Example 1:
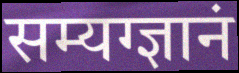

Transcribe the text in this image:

सम्यग्ज्ञानं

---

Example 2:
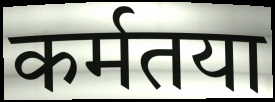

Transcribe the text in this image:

कर्मतया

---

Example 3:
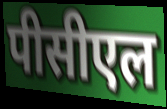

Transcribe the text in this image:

पीसीएल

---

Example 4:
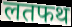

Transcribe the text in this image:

लतफथ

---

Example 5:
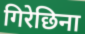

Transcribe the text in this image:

गिरेछिना